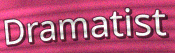
Dramatist